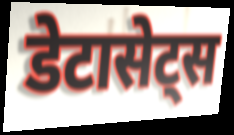
डेटासेट्स